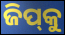
ଜିପ୍‍କୁ